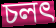
চলৎ